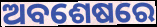
ଅବଶେଷରେ